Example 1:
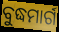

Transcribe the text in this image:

ବୁଦ୍ଧମାର୍ଗ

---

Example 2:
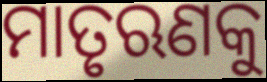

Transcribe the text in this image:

ମାତୃଋଣକୁ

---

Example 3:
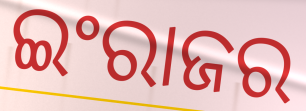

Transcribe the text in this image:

ଇଂରାଜର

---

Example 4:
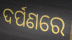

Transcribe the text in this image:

ଦର୍ପଣରେ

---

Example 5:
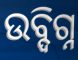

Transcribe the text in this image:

ଉବ୍ଦିଗ୍ନ